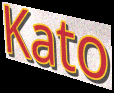
Kato